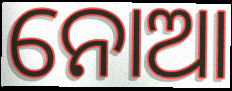
ନୋଆ